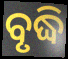
ବୃଦ୍ଧି